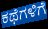
ಕಥೆಗಳಿಗೆ